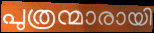
പുത്രന്മാരായി